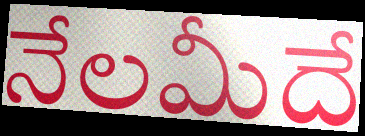
నేలమీదే